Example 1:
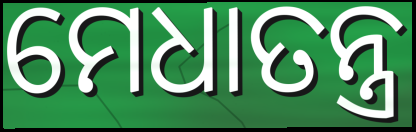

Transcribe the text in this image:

ମେଧାତନ୍ତ୍ର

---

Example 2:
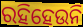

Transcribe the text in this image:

ରହିହେଉନି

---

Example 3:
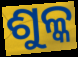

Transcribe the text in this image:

ଶୁଳ୍କ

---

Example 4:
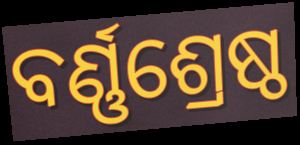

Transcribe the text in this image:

ବର୍ଣ୍ଣଶ୍ରେଷ୍ଠ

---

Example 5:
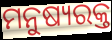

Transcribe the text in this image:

ମନୁଷ୍ଯରକ୍ତ